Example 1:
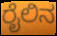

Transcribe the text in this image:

ರೈಲಿನ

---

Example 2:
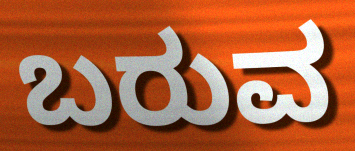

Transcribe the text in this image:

ಬರುವ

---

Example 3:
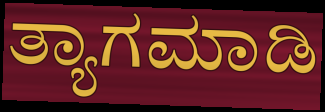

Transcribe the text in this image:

ತ್ಯಾಗಮಾಡಿ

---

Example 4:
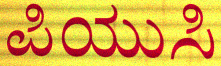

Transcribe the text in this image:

ಪಿಯುಸಿ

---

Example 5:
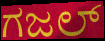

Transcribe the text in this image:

ಗಜಲ್